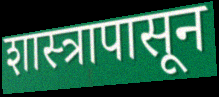
शास्त्रापासून